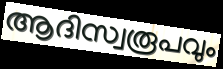
ആദിസ്വരൂപവും